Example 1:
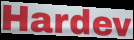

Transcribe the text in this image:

Hardev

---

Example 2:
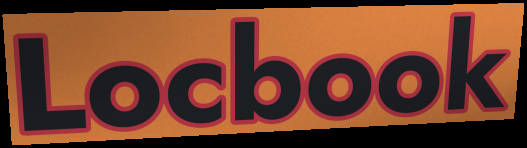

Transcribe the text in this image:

Locbook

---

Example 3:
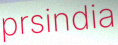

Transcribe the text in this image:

prsindia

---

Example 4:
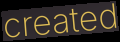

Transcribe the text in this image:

created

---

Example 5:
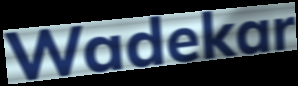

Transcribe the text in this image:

Wadekar